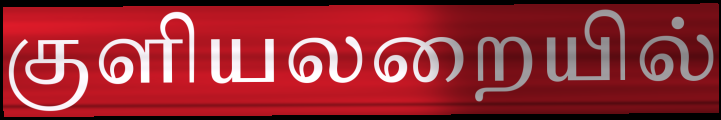
குளியலறையில்